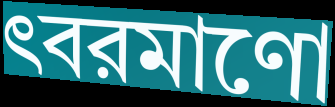
ৎবরমাণো